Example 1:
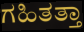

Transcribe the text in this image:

ಗಹಿತತ್ತಾ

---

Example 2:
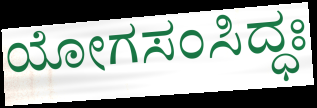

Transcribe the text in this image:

ಯೋಗಸಂಸಿದ್ಧಃ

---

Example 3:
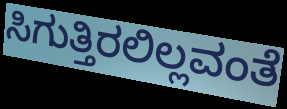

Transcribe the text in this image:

ಸಿಗುತ್ತಿರಲಿಲ್ಲವಂತೆ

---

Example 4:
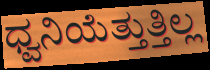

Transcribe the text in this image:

ಧ್ವನಿಯೆತ್ತುತ್ತಿಲ್ಲ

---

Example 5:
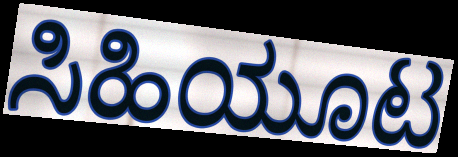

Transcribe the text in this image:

ಸಿಹಿಯೂಟ